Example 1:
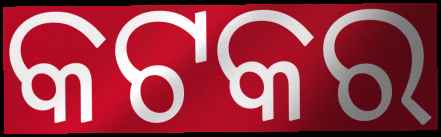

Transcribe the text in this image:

କଟକର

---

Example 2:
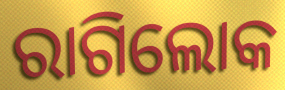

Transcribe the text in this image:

ରାଗିଲୋକ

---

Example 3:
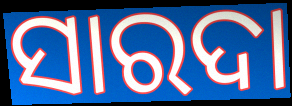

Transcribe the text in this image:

ସାରଦା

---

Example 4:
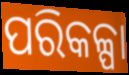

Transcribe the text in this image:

ପରିକଳ୍ପା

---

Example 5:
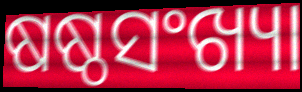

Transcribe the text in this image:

ଷଷ୍ଠସଂଖ୍ୟା